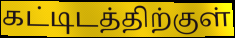
கட்டிடத்திற்குள்